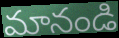
మానండి